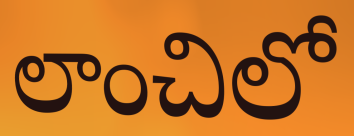
లాంచిలో